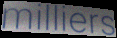
milliers